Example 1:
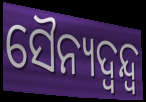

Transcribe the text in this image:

ସୈନ୍ୟଦ୍ୱନ୍ଦ୍ୱ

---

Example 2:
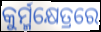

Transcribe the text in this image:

କୁର୍ମ୍ମକ୍ଷେତ୍ରରେ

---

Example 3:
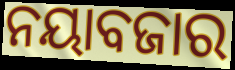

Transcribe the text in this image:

ନୟାବଜାର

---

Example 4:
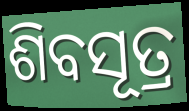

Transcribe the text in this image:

ଶିବସୂତ୍ର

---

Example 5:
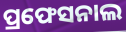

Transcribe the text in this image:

ପ୍ରଫେସନାଲ